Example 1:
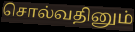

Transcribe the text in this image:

சொல்வதினும்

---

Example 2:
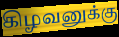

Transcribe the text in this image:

கிழவனுக்கு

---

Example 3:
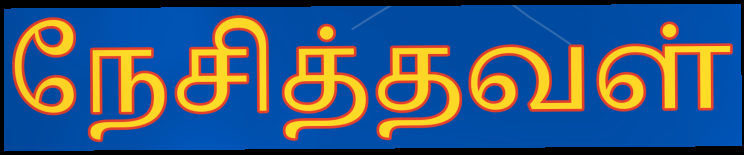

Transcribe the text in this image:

நேசித்தவள்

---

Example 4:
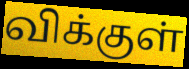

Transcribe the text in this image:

விக்குள்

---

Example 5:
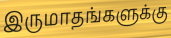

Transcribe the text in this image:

இருமாதங்களுக்கு